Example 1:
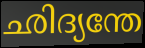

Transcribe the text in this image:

ഛിദ്യന്തേ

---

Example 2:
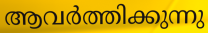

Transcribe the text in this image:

ആവർത്തിക്കുന്നു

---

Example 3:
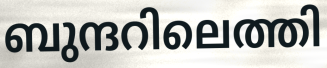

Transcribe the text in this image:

ബുന്ദറിലെത്തി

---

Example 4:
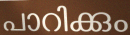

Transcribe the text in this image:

പാറിക്കും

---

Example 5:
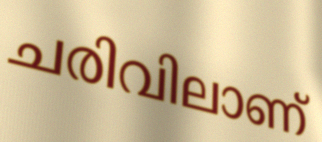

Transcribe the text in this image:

ചരിവിലാണ്